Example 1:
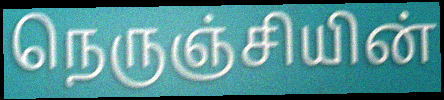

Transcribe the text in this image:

நெருஞ்சியின்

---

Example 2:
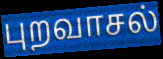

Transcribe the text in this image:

புறவாசல்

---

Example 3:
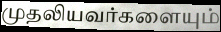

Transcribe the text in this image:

முதலியவர்களையும்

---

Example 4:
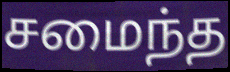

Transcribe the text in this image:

சமைந்த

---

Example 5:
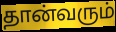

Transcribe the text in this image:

தான்வரும்